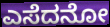
ಎಸೆದನೋ